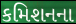
કમિશનના